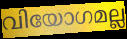
വിയോഗമല്ല